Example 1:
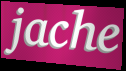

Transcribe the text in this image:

jache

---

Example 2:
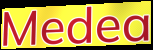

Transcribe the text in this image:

Medea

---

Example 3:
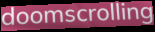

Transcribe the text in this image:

doomscrolling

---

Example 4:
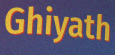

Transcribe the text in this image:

Ghiyath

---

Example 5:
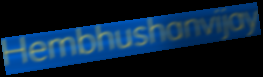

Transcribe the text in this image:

Hembhushanvijay